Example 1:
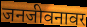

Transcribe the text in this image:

जनजीवनावर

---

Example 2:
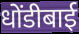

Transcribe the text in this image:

धोंडीबाई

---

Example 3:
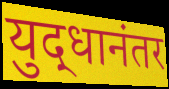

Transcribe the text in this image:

युद्धानंतर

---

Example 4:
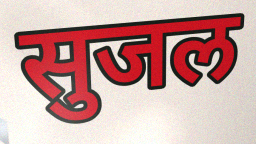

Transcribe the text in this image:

सुजल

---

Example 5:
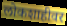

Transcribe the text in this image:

लोकशाहीवर